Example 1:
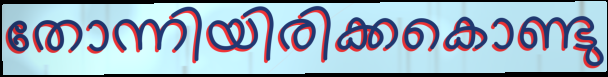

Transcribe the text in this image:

തോന്നിയിരിക്കകൊണ്ടു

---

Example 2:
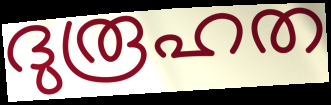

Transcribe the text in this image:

ദുരൂഹത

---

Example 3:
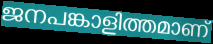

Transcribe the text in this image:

ജനപങ്കാളിത്തമാണ്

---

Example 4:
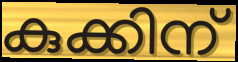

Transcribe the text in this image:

കുക്കിന്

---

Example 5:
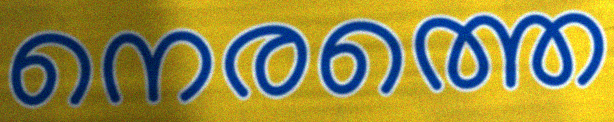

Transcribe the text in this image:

നെരത്തെ